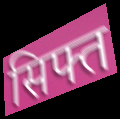
सिफ्त